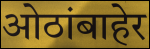
ओठांबाहेर